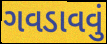
ગવડાવવું